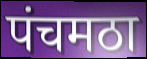
पंचमठा